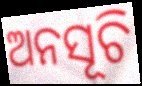
ଅନସୂଚି